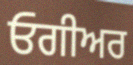
ਓਗੀਅਰ